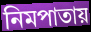
নিমপাতায়